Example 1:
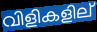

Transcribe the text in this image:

വിളികളില്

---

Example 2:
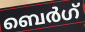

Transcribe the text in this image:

ബെർഗ്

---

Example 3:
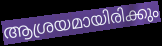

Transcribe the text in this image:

ആശ്രയമായിരിക്കും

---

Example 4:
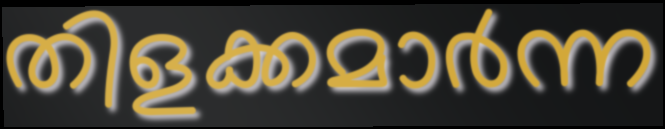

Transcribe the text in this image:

തിളക്കമാർന്ന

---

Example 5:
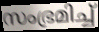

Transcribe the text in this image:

സംഭ്രമിച്ച്